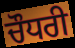
ਚੌਧਰੀ